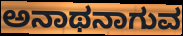
ಅನಾಥನಾಗುವ